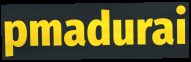
pmadurai